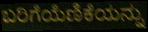
ಬರಿಗೆಯೆಣಿಕೆಯನ್ನು